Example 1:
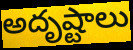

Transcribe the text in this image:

అదృష్టాలు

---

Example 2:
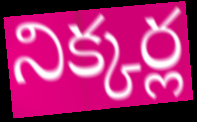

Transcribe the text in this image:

నిక్కర్ల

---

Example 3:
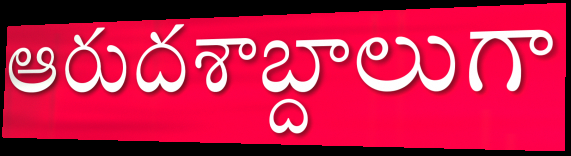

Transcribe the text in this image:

ఆరుదశాబ్దాలుగా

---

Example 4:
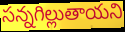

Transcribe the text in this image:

సన్నగిల్లుతాయని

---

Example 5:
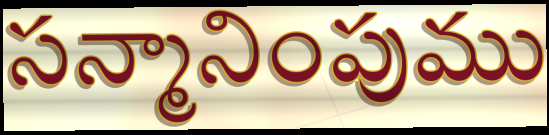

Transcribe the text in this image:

సన్మానింపుము